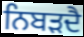
ਨਿਬੜਦੈ